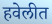
हवेलीत